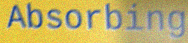
Absorbing